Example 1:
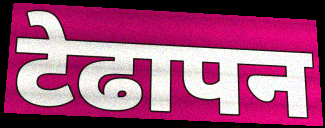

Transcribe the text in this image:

टेढापन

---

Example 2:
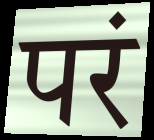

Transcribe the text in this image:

परं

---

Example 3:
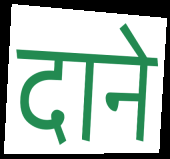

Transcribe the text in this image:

दाने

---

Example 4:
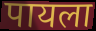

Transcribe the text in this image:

पायला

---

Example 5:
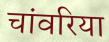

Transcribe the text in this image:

चांवरिया